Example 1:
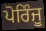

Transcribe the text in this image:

ਪੋਰਿੰਜੂ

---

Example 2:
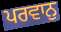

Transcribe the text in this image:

ਪਰਵਾਨੁ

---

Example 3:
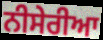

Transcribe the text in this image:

ਨੀਸੇਰੀਆ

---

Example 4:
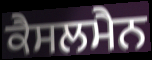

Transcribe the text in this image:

ਕੈਸਲਮੈਨ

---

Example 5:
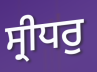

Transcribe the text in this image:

ਸ੍ਰੀਧਰੁ